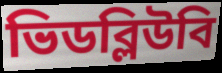
ভিডব্লিউবি